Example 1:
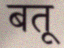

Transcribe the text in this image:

बतू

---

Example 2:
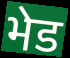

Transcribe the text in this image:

भेड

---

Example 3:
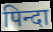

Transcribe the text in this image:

पिन्दा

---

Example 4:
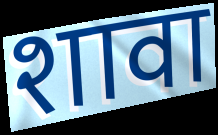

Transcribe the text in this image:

शावा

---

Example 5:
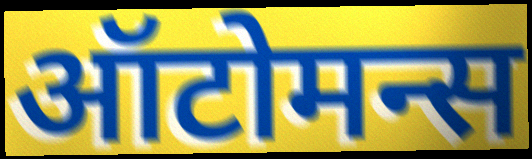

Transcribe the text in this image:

ऑटोमन्स